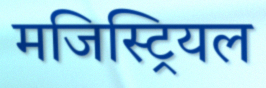
मजिस्ट्रियल